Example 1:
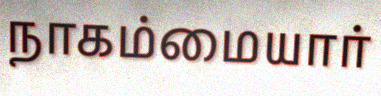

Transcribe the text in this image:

நாகம்மையார்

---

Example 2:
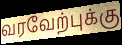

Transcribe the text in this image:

வரவேற்புக்கு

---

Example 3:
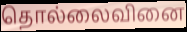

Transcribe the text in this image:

தொல்லைவினை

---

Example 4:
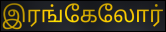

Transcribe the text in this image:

இரங்கேலோர்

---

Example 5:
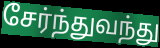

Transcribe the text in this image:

சேர்ந்துவந்து